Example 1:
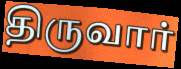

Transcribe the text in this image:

திருவார்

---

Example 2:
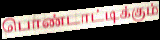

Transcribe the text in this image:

பொண்டாட்டிக்கும்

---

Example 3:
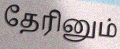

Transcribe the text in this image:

தேரினும்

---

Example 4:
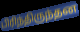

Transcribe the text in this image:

பிரிந்திருந்தன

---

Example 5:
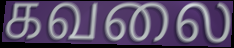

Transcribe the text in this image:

கவலை